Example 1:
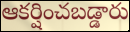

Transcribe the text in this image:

ఆకర్షించబడ్డారు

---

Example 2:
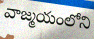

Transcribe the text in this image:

వాజ్మయంలోని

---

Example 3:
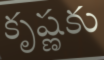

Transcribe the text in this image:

కృష్ణకు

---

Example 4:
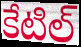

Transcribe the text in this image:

కేటిల్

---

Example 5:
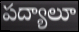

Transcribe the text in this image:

పద్యాలూ